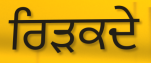
ਰਿੜਕਦੇ